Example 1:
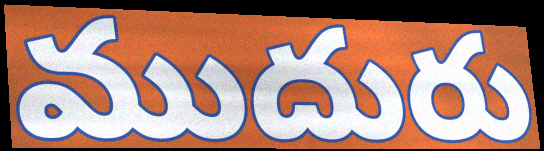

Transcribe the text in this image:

ముదురు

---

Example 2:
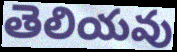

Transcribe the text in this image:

తెలియవు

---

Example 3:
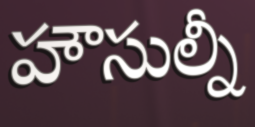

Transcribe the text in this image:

హౌసుల్నీ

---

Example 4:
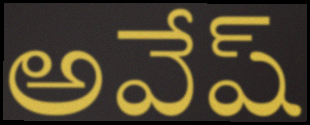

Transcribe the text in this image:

అవేష్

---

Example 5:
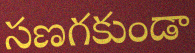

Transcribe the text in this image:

సణగకుండా